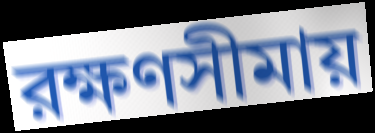
রক্ষণসীমায়